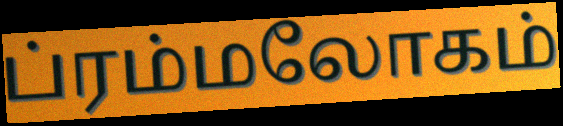
ப்ரம்மலோகம்